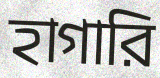
হাগারি